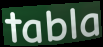
tabla